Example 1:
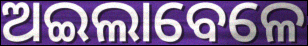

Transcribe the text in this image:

ଅଇଲାବେଳେ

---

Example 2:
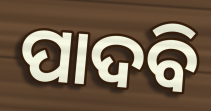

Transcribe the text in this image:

ପାଦବି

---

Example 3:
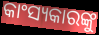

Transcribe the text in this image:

କାଂସ୍ୟକାରଙ୍କୁ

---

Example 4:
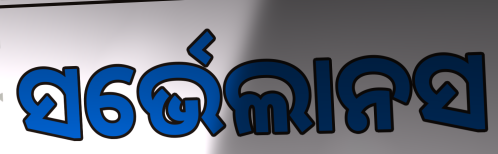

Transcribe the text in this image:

ସର୍ଭେଲାନସ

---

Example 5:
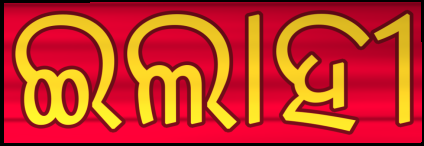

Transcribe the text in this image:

ଇଲାହୀ